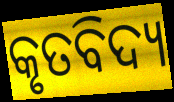
କୃତବିଦ୍ୟ